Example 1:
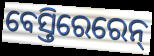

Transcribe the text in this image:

ବେସ୍ତିରେରେନ୍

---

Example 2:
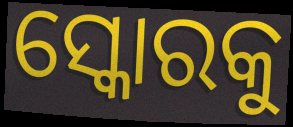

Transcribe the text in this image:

ସ୍କୋରକୁ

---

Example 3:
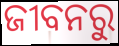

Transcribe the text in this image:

ଜୀବନରୁ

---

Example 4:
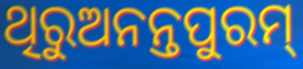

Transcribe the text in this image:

ଥିରୁଅନନ୍ତପୁରମ୍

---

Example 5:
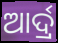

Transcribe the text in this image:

ଆର୍ଦ୍ର